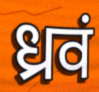
ध्रवं